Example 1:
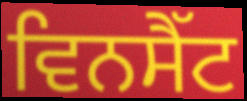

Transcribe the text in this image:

ਵਿਨਸੈੱਟ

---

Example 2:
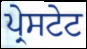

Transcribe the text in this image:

ਪ੍ਰੇਸਟੇਟ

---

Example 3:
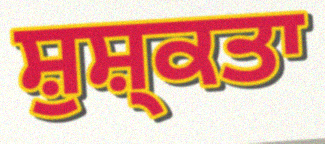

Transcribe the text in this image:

ਸ਼ੁਸ਼੍ਕਤਾ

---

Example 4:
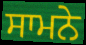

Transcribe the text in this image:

ਸਾਮਨੇ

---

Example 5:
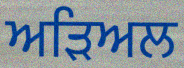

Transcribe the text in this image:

ਅੜਿਅਲ